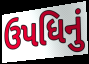
ઉપધિનું